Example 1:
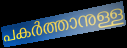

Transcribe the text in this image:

പകർത്താനുള്ള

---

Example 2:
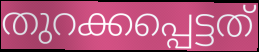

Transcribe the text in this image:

തുറക്കപ്പെട്ടത്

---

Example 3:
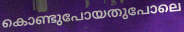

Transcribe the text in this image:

കൊണ്ടുപോയതുപോലെ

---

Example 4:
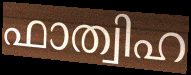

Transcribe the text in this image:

ഫാത്വിഹ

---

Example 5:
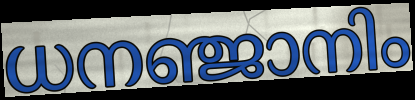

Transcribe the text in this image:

ധനഞ്ജാനിം